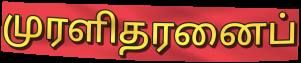
முரளிதரனைப்